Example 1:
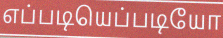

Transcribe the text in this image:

எப்படியெப்படியோ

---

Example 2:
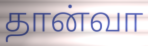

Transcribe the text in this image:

தான்வா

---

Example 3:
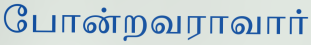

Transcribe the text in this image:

போன்றவராவார்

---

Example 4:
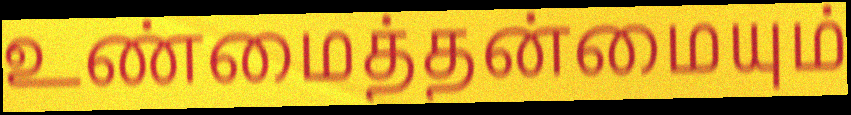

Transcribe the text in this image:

உண்மைத்தன்மையும்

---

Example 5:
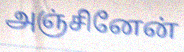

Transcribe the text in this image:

அஞ்சினேன்